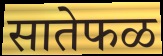
सातेफळ